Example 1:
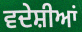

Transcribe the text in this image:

ਵਦੇਸ਼ੀਆਂ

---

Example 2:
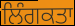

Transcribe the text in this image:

ਲਿੰਗਕਤਾ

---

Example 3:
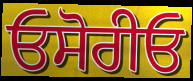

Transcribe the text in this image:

ਓਸੋਰੀਓ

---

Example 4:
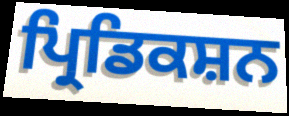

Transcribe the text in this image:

ਪ੍ਰਿਡਿਕਸ਼ਨ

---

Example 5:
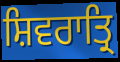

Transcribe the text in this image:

ਸ਼ਿਵਰਾਤ੍ਰਿ